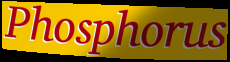
Phosphorus